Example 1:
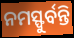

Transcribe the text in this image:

ନମସ୍ଫୁର୍ବନ୍ତି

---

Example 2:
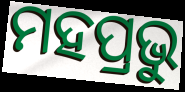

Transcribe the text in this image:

ମହପ୍ରଭୁ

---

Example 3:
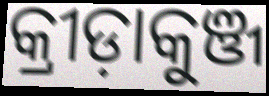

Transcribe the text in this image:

କ୍ରୀଡ଼ାକୁଞ୍ଜ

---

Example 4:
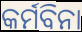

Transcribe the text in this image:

କର୍ମବିନା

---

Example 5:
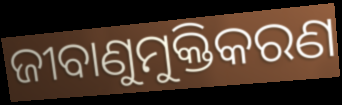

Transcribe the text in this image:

ଜୀବାଣୁମୁକ୍ତିକରଣ